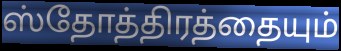
ஸ்தோத்திரத்தையும்